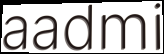
aadmi